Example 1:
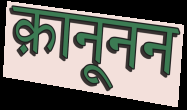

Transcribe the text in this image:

क़ानूनन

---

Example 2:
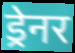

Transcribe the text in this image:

ड्रेनर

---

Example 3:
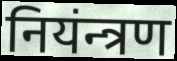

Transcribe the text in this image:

नियंन्त्रण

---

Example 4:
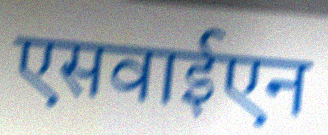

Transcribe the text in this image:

एसवाईएन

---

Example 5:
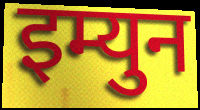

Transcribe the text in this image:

इम्युन